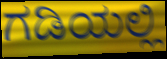
ಗಡಿಯಲ್ಲಿ